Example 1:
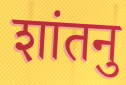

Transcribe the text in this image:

शांतनु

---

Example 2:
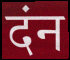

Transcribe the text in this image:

दंन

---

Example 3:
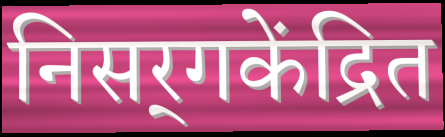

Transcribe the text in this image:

निसर्गकेंद्रित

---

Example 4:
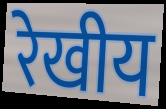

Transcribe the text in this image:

रेखीय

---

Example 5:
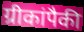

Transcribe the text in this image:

ग्रीकांपैकी